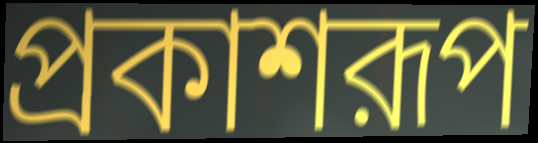
প্রকাশরূপ